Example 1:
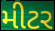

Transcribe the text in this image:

મીટર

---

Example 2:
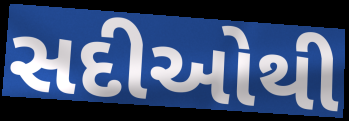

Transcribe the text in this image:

સદીઓથી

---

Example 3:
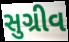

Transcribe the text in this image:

સુગ્રીવ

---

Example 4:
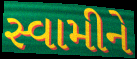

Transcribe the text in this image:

સ્વામીને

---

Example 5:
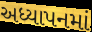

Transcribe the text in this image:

અધ્યાપનમાં